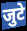
जुटे